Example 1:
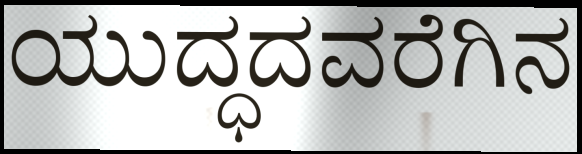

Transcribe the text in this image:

ಯುದ್ಧದವರೆಗಿನ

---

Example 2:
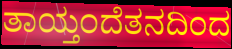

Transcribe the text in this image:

ತಾಯ್ತಂದೆತನದಿಂದ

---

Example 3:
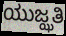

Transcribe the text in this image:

ಯುಜ್ಝತಿ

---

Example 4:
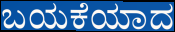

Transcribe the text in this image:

ಬಯಕೆಯಾದ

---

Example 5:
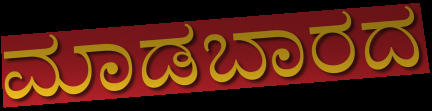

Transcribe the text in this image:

ಮಾಡಬಾರದ